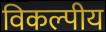
विकल्पीय